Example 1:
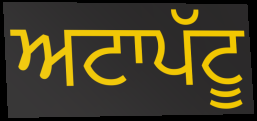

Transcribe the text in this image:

ਅਟਾਪੱਟੂ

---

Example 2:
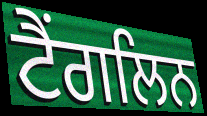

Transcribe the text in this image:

ਟੈਂਗਲਿਨ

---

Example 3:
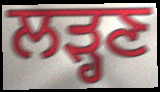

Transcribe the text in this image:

ਲੜ੍ਹਣ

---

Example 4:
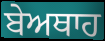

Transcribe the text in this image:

ਬੇਅਥਾਹ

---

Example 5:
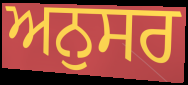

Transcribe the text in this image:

ਅਨੁਸਰ